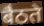
बैठते